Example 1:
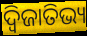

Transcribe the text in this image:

ଦ୍ବିଜାତିଭ୍ୟ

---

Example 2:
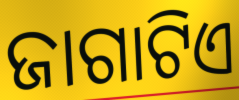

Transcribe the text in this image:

ଜାଗାଟିଏ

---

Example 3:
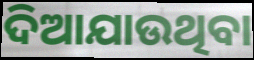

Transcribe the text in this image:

ଦିଆଯାଉଥିବା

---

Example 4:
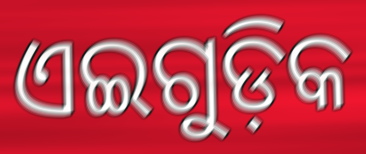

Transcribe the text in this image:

ଏଇଗୁଡ଼ିକ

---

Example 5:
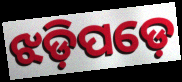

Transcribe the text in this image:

ଝଡ଼ିପଡ଼େ